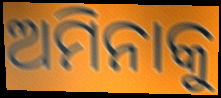
ଅମିନାକୁ